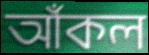
আঁকল